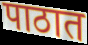
पाठात